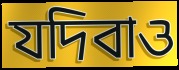
যদিবাও